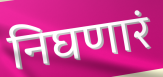
निघणारं